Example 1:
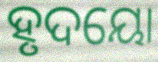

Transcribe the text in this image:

ହୃଦୟୋ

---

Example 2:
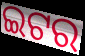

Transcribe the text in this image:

ଇଟର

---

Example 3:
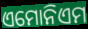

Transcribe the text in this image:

ଏମୋନିଏମ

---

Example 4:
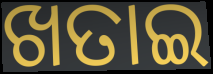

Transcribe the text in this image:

ଖତାଇ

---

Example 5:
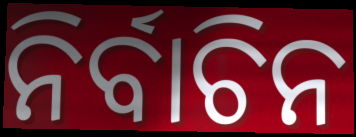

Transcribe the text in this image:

ନିର୍ବାଚିନ